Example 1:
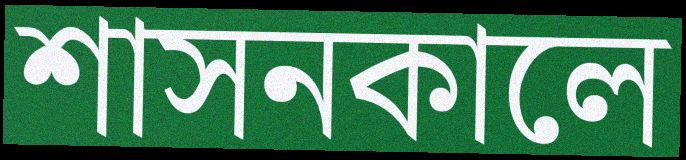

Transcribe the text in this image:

শাসনকালে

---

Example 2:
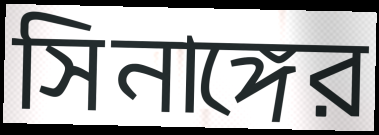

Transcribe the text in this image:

সিনাঙ্গের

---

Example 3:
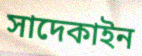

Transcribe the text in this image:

সাদেকাইন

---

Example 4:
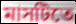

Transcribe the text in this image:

মাসটিতে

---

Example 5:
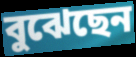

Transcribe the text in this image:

বুঝেছেন